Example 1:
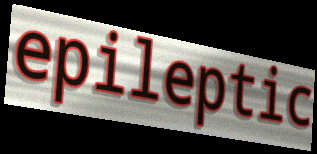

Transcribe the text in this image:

epileptic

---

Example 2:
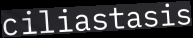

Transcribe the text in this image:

ciliastasis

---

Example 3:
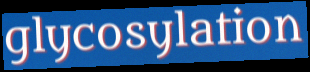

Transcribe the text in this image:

glycosylation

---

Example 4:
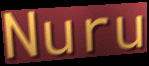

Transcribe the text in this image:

Nuru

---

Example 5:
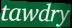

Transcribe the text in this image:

tawdry